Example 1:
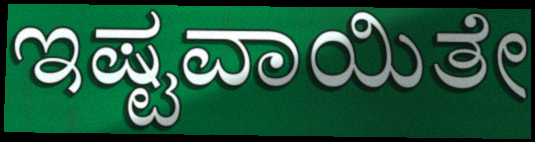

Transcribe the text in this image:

ಇಷ್ಟವಾಯಿತೇ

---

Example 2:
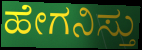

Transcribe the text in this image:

ಹೇಗನಿಸ್ತು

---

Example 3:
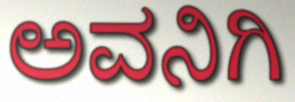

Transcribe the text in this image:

ಅವನಿಗಿ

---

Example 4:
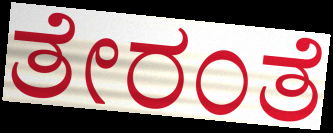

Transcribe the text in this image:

ತೇರಂತೆ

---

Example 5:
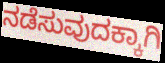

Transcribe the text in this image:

ನಡೆಸುವುದಕ್ಕಾಗಿ